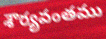
శౌర్యవంతము